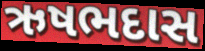
ઋષભદાસ